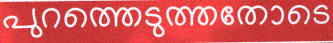
പുറത്തെടുത്തതോടെ